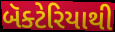
બૅક્ટેરિયાથી